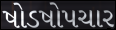
ષોડષોપચાર